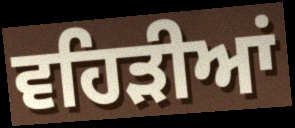
ਵਹਿੜੀਆਂ